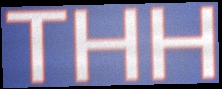
THH